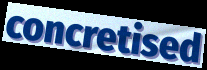
concretised